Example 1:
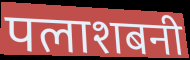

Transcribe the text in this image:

पलाशबनी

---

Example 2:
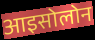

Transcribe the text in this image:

आइसोलोन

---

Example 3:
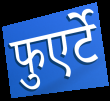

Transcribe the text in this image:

फुएर्टे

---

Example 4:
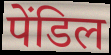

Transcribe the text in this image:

पेंडिल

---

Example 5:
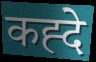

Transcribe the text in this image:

कह्दे